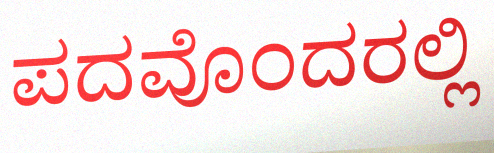
ಪದವೊಂದರಲ್ಲಿ